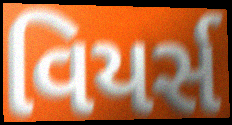
વિયર્સ